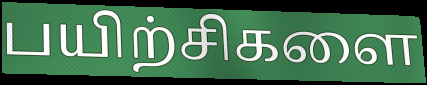
பயிற்சிகளை